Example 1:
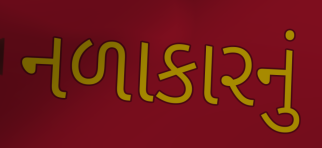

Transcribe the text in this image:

નળાકારનું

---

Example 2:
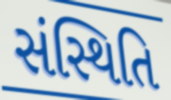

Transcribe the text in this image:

સંસ્થિતિ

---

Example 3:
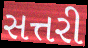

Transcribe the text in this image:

સત્તરી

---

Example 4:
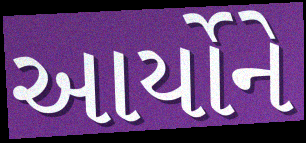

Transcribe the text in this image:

આર્યોને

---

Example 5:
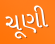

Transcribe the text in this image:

ચૂણી